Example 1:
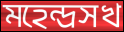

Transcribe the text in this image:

মহেন্দ্রসখ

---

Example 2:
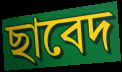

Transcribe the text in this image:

ছাবেদ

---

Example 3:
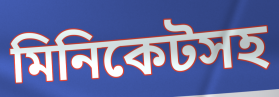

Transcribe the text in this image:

মিনিকেটসহ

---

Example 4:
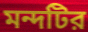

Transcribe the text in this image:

মন্দটির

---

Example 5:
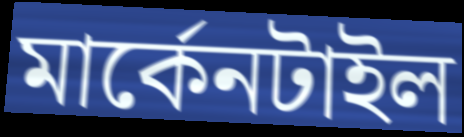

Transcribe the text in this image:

মার্কেনটাইল